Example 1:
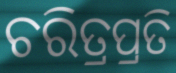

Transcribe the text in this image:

ଚରିତ୍ରପ୍ରତି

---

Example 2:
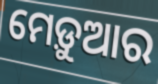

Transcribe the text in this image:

ମେଡ଼ୁଆର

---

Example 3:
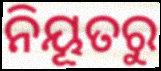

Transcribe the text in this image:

ନିୟୂତରୁ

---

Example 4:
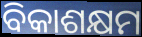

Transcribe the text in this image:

ବିକାଶକ୍ଷମ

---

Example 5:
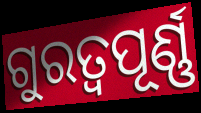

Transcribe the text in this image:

ଗୁରତ୍ୱପୂର୍ଣ୍ଣ